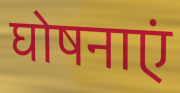
घोषनाएं